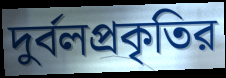
দুর্বলপ্রকৃতির